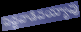
పెద్దవాడివయ్యావు